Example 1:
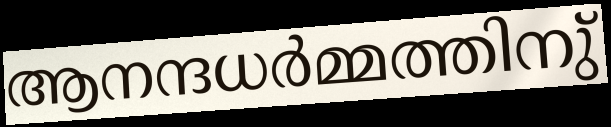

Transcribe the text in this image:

ആനന്ദധർമ്മത്തിനു്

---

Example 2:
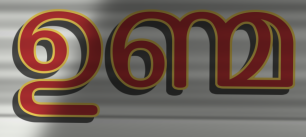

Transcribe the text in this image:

ഉണ്മ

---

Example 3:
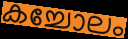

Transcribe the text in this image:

കച്ചോലം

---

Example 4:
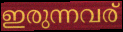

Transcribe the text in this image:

ഇരുന്നവര്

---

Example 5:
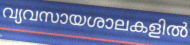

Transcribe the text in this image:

വ്യവസായശാലകളിൽ